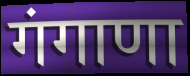
गंगाणा